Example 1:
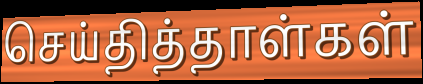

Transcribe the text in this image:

செய்தித்தாள்கள்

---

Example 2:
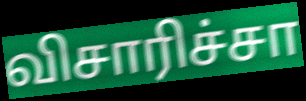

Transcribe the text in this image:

விசாரிச்சா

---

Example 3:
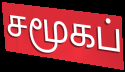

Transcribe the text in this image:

சமூகப்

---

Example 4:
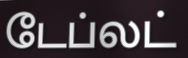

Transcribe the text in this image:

டேப்லட்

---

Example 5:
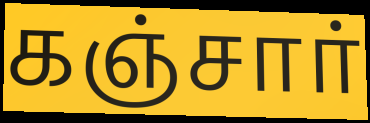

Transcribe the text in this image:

கஞ்சார்